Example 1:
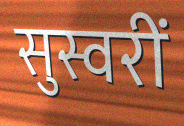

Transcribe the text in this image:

सुस्वरीं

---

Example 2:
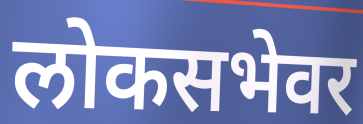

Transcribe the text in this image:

लोकसभेवर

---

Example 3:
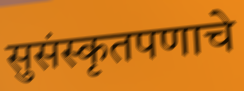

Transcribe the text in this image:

सुसंस्कृतपणाचे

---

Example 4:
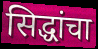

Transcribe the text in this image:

सिद्धांचा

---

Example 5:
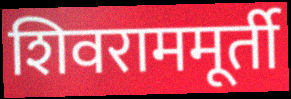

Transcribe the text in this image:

शिवराममूर्ती